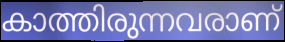
കാത്തിരുന്നവരാണ്